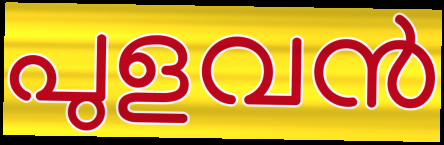
പുളവൻ